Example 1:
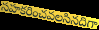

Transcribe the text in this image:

సహకరించవలసినదిగా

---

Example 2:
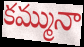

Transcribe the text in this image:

కమ్మునా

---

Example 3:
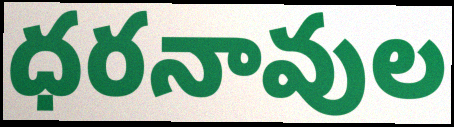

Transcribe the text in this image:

ధరనావుల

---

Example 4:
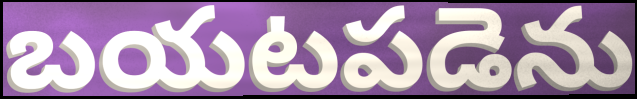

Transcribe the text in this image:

బయటపడెను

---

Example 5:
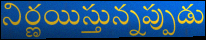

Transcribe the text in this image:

నిర్ణయిస్తున్నప్పుడు